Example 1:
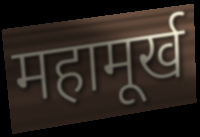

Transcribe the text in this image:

महामूर्ख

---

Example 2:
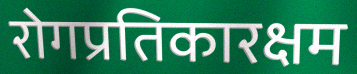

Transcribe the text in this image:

रोगप्रतिकारक्षम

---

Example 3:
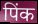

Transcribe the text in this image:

पिंक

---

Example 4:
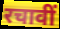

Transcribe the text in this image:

रचावीं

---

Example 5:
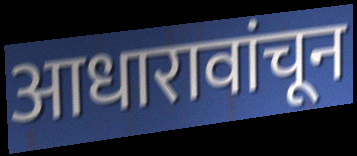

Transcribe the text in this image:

आधारावांचून